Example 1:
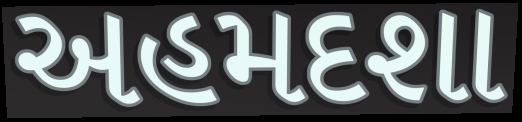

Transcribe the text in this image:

અહમદશા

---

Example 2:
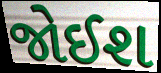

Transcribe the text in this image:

જોઈશ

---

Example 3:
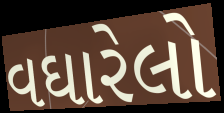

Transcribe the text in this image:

વઘારેલો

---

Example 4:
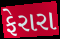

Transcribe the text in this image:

ફેરારા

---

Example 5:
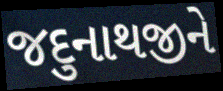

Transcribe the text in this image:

જદુનાથજીને